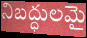
నిబద్ధులమై